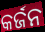
କର୍ଜନ